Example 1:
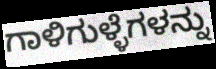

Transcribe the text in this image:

ಗಾಳಿಗುಳ್ಳೆಗಳನ್ನು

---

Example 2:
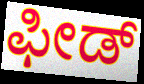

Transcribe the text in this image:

ಫೀಡ್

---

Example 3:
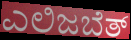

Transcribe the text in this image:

ಎಲಿಜಬೆತ್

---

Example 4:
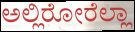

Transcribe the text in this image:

ಅಲ್ಲಿರೋರೆಲ್ಲಾ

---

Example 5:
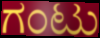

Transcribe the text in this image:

ಗಂಟು